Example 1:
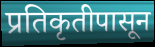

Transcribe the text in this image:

प्रतिकृतीपासून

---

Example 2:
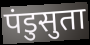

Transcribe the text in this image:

पंडुसुता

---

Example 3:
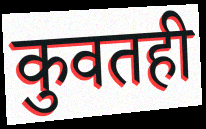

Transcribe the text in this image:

कुवतही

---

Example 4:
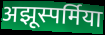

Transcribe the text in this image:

अझूस्पर्मिया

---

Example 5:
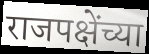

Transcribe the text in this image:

राजपक्षेंच्या